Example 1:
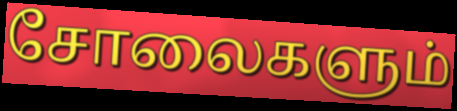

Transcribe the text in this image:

சோலைகளும்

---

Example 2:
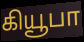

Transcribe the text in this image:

கியூபா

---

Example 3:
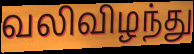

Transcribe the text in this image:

வலிவிழந்து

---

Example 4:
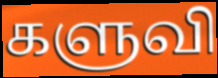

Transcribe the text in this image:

களுவி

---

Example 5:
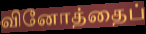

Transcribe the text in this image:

வினோத்தைப்